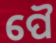
ପୈ